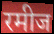
रमीज